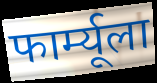
फार्म्यूला